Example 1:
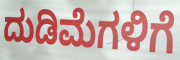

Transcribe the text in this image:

ದುಡಿಮೆಗಳಿಗೆ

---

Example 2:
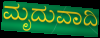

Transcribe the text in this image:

ಮೃದುವಾದಿ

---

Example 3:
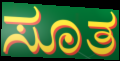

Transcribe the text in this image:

ಸೂತ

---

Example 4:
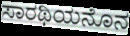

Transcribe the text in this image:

ಸಾರಥಿಯನೊನ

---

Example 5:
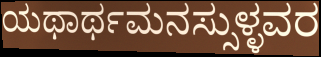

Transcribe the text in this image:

ಯಥಾರ್ಥಮನಸ್ಸುಳ್ಳವರ